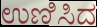
ಉಣಿಸಿದ